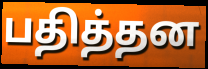
பதித்தன